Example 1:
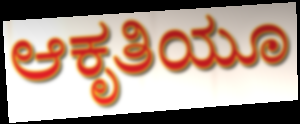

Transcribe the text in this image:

ಆಕೃತಿಯೂ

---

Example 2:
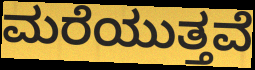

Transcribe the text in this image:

ಮರೆಯುತ್ತವೆ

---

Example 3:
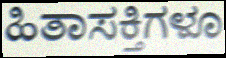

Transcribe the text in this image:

ಹಿತಾಸಕ್ತಿಗಳೂ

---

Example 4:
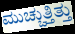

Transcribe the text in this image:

ಮುಚ್ಚುತ್ತಿತ್ತು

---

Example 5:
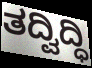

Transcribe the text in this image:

ತದ್ವಿದ್ಧಿ